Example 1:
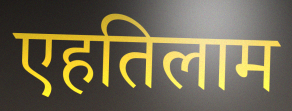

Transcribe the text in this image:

एहतिलाम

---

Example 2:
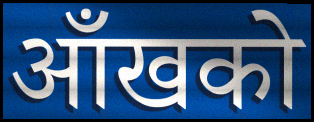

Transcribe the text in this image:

आँखको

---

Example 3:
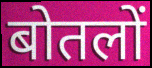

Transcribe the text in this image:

बोतलों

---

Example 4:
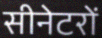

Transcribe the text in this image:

सीनेटरों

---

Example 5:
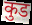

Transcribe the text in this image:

कुड